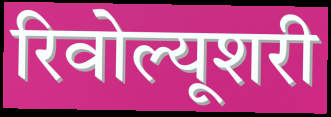
रिवोल्यूशरी